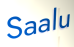
Saalu